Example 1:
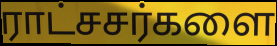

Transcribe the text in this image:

ராட்சசர்களை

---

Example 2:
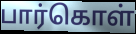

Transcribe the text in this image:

பார்கொள்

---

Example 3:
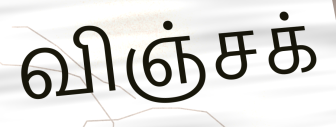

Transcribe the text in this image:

விஞ்சக்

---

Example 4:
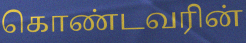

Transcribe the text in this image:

கொண்டவரின்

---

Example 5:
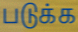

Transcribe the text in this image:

படுக்க